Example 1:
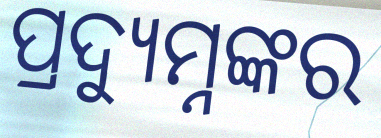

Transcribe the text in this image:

ପ୍ରଦ୍ୟୁମ୍ନଙ୍କର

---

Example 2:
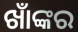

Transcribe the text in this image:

ଖାଁଙ୍କର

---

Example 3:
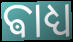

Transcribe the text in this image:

ଵାଧ୍ୟ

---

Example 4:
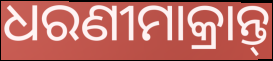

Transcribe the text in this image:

ଧରଣୀମାକ୍ରାନ୍ତ୍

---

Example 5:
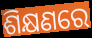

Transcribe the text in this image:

ଶିକ୍ଷଣରେ